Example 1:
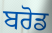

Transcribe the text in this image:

ਬਰੋਡ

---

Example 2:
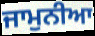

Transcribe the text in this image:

ਜਾਮੁਨੀਆ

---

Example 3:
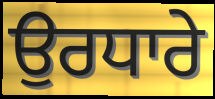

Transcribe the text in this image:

ਉਰਧਾਰੇ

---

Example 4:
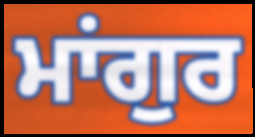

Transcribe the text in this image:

ਮਾਂਗੁਰ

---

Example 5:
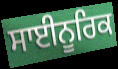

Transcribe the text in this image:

ਸਾਈਨੂਰਿਕ